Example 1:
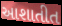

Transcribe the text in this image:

આશાતીત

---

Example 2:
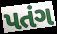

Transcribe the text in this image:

પતંગ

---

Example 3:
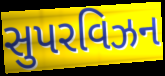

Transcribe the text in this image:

સુપરવિઝન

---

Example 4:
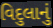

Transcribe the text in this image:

વિદુલાનું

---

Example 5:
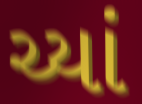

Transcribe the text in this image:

ચ્યાં